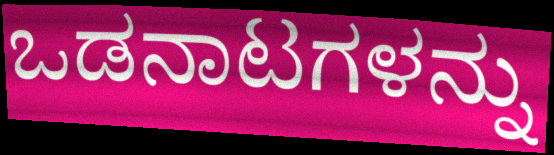
ಒಡನಾಟಗಳನ್ನು